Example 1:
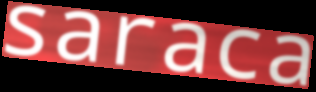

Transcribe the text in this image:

saraca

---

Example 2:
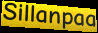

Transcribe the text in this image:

Sillanpaa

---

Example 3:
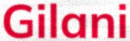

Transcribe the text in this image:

Gilani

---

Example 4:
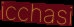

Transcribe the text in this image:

icchasi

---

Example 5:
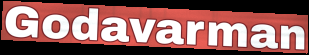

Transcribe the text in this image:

Godavarman